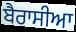
ਬੈਰਾਸੀਆ